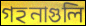
গহনাগুলি